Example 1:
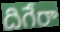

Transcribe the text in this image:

దిగేరా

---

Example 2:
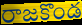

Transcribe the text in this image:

రాజకొండ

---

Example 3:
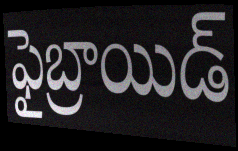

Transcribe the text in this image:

ఫైబ్రాయిడ్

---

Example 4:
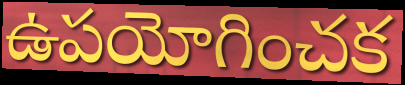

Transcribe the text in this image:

ఉపయోగించక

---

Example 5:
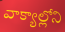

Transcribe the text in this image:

వాక్యాల్లోని